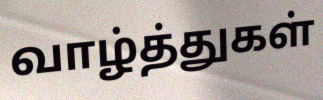
வாழ்த்துகள்